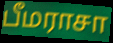
பீமராசா